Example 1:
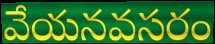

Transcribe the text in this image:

వేయనవసరం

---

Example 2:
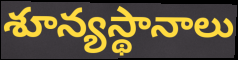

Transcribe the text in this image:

శూన్యస్థానాలు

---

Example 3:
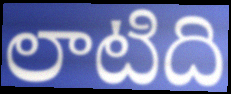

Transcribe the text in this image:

లాటిది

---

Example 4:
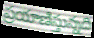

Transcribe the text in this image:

ప్రయాణిస్తున్నది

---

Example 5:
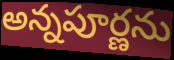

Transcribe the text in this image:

అన్నపూర్ణను